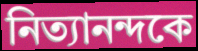
নিত্যানন্দকে